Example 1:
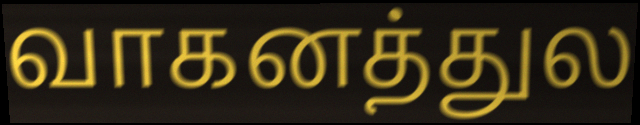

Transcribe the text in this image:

வாகனத்துல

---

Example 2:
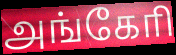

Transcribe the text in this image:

அங்கேரி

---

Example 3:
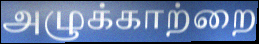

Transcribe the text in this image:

அழுக்காற்றை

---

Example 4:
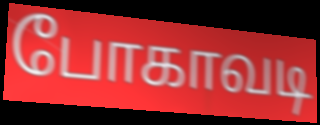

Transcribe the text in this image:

போகாவடி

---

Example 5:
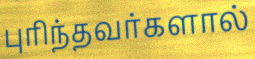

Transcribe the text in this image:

புரிந்தவர்களால்